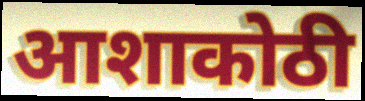
आशाकोठी